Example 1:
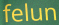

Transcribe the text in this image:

felun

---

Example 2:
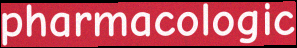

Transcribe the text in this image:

pharmacologic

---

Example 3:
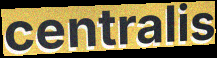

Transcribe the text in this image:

centralis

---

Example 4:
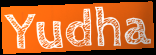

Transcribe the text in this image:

Yudha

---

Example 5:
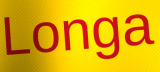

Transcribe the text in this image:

Longa